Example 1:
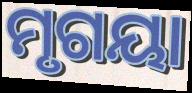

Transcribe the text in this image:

ମୃଗୟା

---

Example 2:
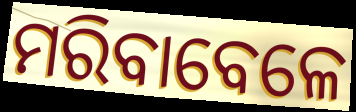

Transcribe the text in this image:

ମରିବାବେଳେ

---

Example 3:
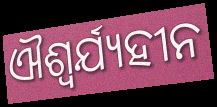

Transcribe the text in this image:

ଐଶ୍ଵର୍ଯ୍ୟହୀନ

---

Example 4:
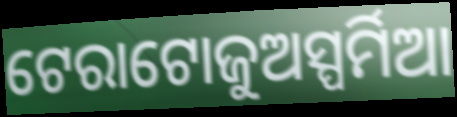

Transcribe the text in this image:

ଟେରାଟୋଜୁଅସ୍ପର୍ମିଆ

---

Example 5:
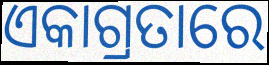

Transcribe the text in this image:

ଏକାଗ୍ରତାରେ